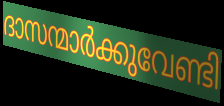
ദാസന്മാർക്കുവേണ്ടി